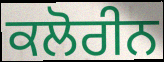
ਕਲੋਰੀਨ